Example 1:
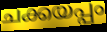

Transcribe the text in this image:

ചക്കയപ്പം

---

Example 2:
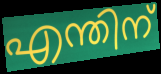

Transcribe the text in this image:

എന്തിന്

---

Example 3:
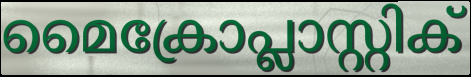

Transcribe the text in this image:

മൈക്രോപ്ലാസ്റ്റിക്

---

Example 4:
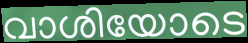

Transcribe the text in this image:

വാശിയോടെ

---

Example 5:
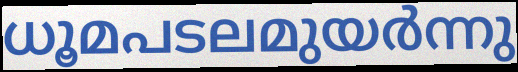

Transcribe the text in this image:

ധൂമപടലമുയർന്നു